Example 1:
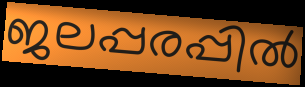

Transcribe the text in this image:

ജലപ്പരപ്പിൽ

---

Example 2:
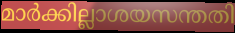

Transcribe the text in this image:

മാർക്കില്ലാശയസന്തതി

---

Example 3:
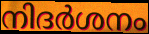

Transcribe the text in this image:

നിദർശനം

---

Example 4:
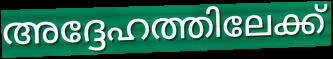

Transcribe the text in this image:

അദ്ദേഹത്തിലേക്ക്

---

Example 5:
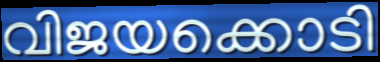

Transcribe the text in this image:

വിജയക്കൊടി